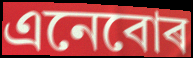
এনেবোৰ